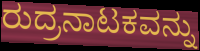
ರುದ್ರನಾಟಕವನ್ನು